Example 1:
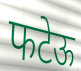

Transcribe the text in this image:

फटेऊ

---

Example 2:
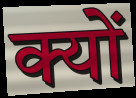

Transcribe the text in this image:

क्यों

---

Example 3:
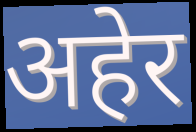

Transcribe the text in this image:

अहेर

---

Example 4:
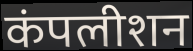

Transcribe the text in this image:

कंपलीशन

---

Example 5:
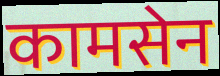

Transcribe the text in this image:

कामसेन